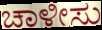
ಚಾಳೀಸು